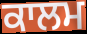
ਕਾਲਮ